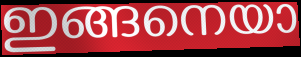
ഇങ്ങനെയാ